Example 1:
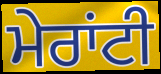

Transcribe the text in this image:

ਮੇਰਾਂਟੀ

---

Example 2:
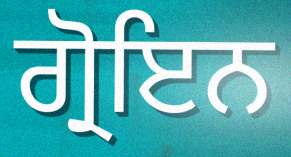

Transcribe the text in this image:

ਗ੍ਰੋਇਨ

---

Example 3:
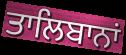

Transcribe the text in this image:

ਤਾਲਿਬਾਨਾਂ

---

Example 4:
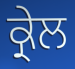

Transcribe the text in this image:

ਕ੍ਰੇਲ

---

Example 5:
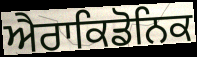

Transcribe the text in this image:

ਐਰਾਕਿਡੋਨਿਕ